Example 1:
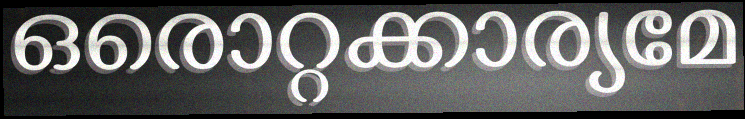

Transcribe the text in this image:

ഒരൊറ്റക്കാര്യമേ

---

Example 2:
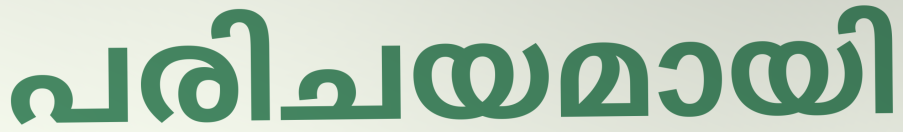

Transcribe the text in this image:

പരിചയമായി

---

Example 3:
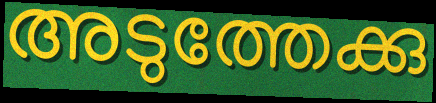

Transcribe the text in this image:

അടുത്തേക്കു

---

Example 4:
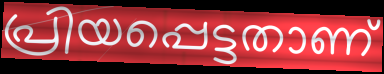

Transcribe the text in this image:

പ്രിയപ്പെട്ടതാണ്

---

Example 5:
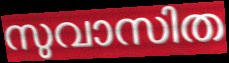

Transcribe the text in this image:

സുവാസിത